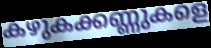
കഴുകക്കണ്ണുകളെ